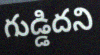
గుడ్డిదని